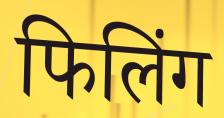
फिलिंग